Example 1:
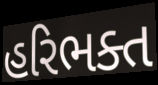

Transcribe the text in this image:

હરિભક્ત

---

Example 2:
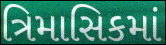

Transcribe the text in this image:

ત્રિમાસિકમાં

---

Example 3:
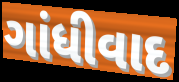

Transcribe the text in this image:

ગાંધીવાદ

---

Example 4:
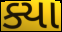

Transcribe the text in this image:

ક્યા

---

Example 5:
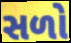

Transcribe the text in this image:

સળો